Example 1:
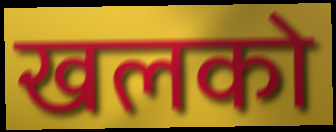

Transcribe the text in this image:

खलको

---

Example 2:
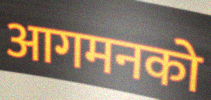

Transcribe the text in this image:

आगमनको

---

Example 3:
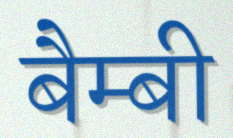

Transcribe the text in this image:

बैम्बी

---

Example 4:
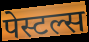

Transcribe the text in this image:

पेस्टल्स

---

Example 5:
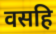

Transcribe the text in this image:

वसहि